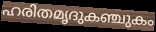
ഹരിതമൃദുകഞ്ചുകം